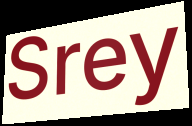
Srey